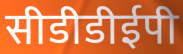
सीडीडीईपी